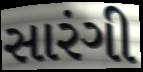
સારંગી